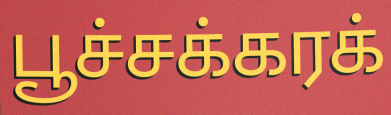
பூச்சக்கரக்